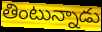
తింటున్నాడు